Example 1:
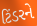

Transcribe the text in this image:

ટિંડરને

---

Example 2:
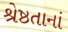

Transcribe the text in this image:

શ્રેષ્ઠતાનાં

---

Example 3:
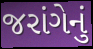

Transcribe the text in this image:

જરાંગેનું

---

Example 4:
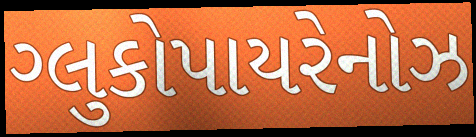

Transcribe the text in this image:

ગ્લુકોપાયરેનોઝ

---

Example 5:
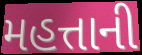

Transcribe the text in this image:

મહત્તાની